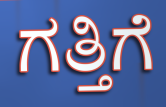
ಗತ್ತಿಗೆ